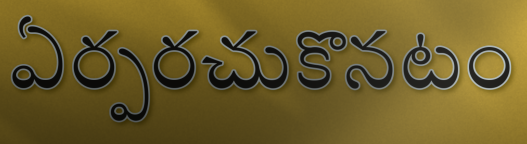
ఏర్పరచుకొనటం